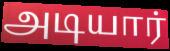
அடியார்